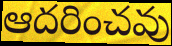
ఆదరించవు